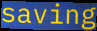
saving